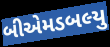
બીએમડબલ્યુ